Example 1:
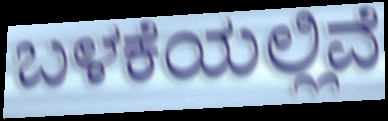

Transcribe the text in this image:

ಬಳಕೆಯಲ್ಲಿವೆ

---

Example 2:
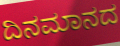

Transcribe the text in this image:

ದಿನಮಾನದ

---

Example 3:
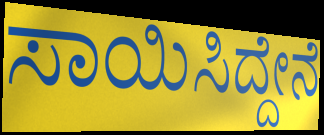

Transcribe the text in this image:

ಸಾಯಿಸಿದ್ದೇನೆ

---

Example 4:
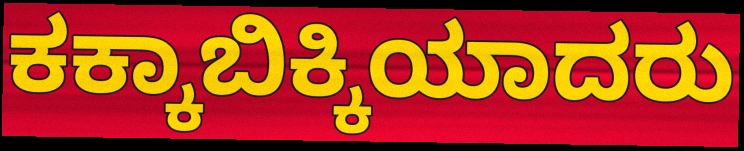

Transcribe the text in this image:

ಕಕ್ಕಾಬಿಕ್ಕಿಯಾದರು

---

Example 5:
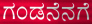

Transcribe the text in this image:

ಗಂಡನೆನಗೆ